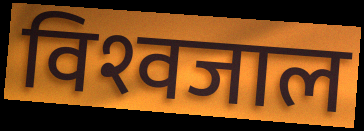
विश्वजाल